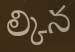
ల్కిన